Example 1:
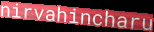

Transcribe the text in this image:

nirvahincharu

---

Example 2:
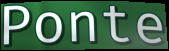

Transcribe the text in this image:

Ponte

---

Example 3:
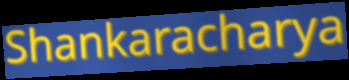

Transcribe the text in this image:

Shankaracharya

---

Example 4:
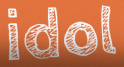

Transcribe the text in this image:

idol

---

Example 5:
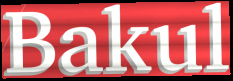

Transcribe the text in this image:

Bakul